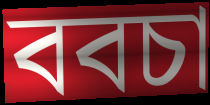
ববচা